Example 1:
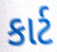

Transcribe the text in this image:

કાર્ટ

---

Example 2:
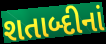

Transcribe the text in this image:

શતાબ્દીનાં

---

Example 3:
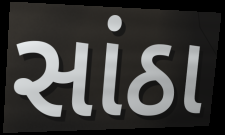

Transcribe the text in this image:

સાંઠા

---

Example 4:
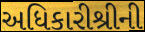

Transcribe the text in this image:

અધિકારીશ્રીની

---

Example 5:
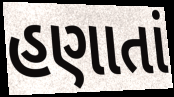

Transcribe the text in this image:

હણાતાં